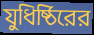
যুধিষ্ঠিরের